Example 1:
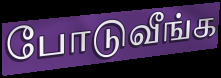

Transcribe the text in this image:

போடுவீங்க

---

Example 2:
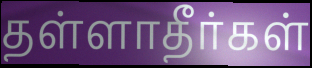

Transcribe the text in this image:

தள்ளாதீர்கள்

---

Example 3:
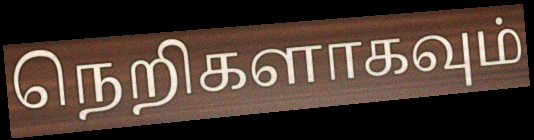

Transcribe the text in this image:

நெறிகளாகவும்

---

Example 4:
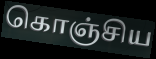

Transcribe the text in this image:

கொஞ்சிய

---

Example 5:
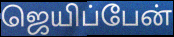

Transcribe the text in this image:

ஜெயிப்பேன்